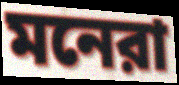
মনেরা